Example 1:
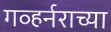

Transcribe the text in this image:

गव्हर्नराच्या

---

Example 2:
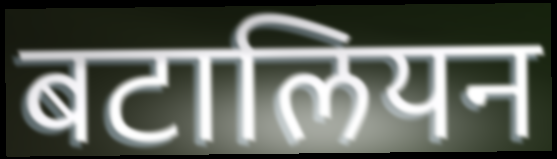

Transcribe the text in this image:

बटालियन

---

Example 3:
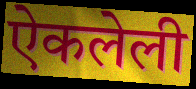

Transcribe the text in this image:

ऐकलेली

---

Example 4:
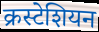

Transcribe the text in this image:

क्रस्टेशियन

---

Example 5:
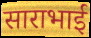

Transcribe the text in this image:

साराभाई